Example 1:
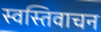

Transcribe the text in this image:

स्वस्तिवाचन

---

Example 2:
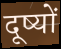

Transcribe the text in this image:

दूष्यों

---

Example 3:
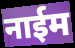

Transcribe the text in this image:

नाईम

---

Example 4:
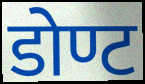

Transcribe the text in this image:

डोण्ट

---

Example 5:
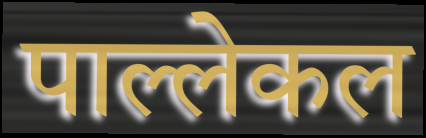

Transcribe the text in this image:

पाल्लेकल